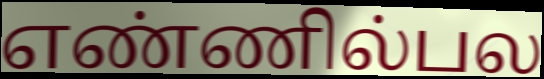
எண்ணில்பல